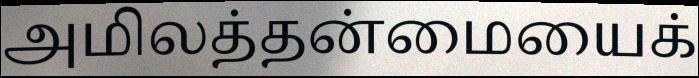
அமிலத்தன்மையைக்